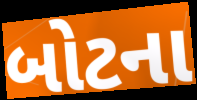
બોટના